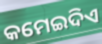
କମେଇଦିଏ